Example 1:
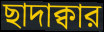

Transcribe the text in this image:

ছাদাক্বার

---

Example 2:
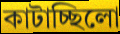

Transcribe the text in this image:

কাটাচ্ছিলো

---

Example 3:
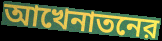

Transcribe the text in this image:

আখেনাতনের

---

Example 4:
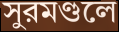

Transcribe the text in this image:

সুরমণ্ডলে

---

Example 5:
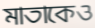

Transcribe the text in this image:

মাতাকেও